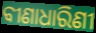
ବୀଣାଧାରିଣୀ